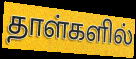
தாள்களில்